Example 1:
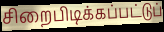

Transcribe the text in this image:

சிறைபிடிக்கப்பட்டுப்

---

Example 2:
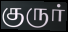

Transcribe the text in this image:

குருர்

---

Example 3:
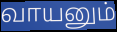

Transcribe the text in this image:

வாயனும்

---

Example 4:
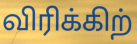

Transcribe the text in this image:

விரிக்கிற்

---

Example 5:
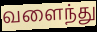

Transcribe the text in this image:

வளைந்து